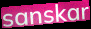
sanskar